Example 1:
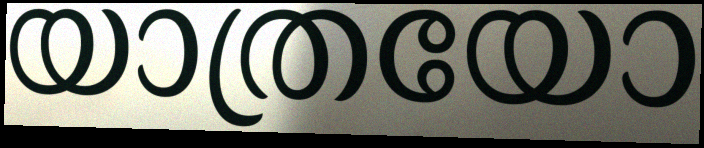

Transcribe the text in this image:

യാത്രയോ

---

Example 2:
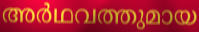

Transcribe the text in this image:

അർഥവത്തുമായ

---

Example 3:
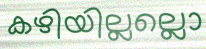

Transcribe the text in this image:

കഴിയില്ലല്ലൊ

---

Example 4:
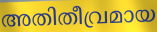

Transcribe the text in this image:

അതിതീവ്രമായ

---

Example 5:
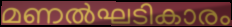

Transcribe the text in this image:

മണൽഘടികാരം